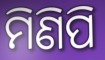
ମିଣିପି